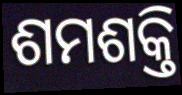
ଶମଶକ୍ତି